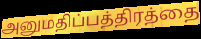
அனுமதிப்பத்திரத்தை